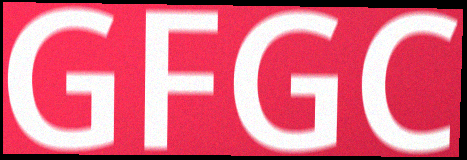
GFGC